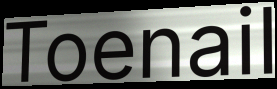
Toenail